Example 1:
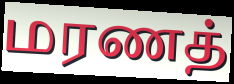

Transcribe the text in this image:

மரணத்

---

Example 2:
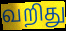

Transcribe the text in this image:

வறிது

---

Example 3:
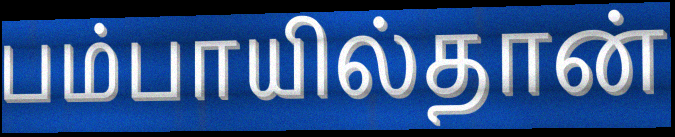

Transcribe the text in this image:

பம்பாயில்தான்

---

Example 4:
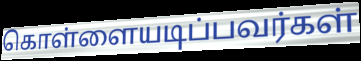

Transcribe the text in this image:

கொள்ளையடிப்பவர்கள்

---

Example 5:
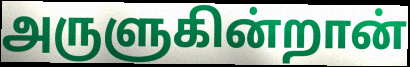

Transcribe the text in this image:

அருளுகின்றான்